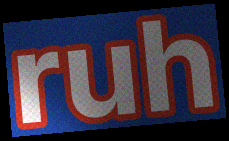
ruh